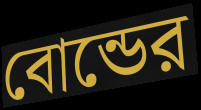
বোন্ডের